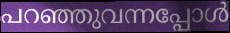
പറഞ്ഞുവന്നപ്പോൾ